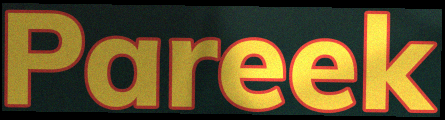
Pareek